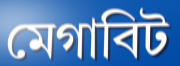
মেগাবিট